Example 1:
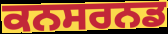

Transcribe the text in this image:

ਕਨਸਰਨਡ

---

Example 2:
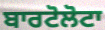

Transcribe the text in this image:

ਬਾਰਟੋਲੋਟਾ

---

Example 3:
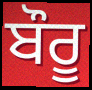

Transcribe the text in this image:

ਬੌਰੂ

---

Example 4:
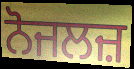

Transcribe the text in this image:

ਨੋਜਲਜ਼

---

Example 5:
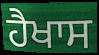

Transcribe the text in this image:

ਹੈਖਾਸ